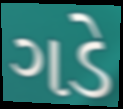
ગડે